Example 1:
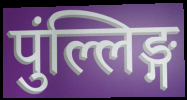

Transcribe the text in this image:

पुंल्लिङ्ग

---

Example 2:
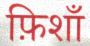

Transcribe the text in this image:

फ़िशाँ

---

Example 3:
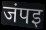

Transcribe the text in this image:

जंपइ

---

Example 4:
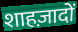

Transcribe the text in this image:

शाहज़ादों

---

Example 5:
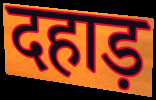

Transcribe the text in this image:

दहाड़